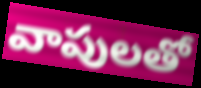
వాపులతో